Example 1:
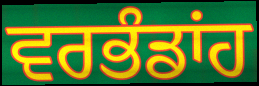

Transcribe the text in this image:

ਵਰਭੰਡਾਂਹ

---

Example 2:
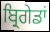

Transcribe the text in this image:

ਬ੍ਰਿਗੇਡਾਂ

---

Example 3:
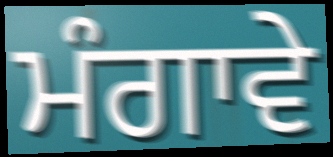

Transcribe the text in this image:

ਮੰਗਾਵੇ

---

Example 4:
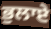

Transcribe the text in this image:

ਭੁਲਾਏ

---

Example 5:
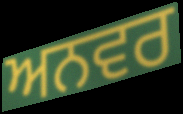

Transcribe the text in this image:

ਅਨਵਰ